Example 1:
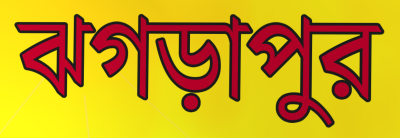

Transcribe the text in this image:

ঝগড়াপুর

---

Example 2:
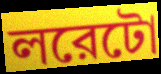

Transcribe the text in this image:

লরেটো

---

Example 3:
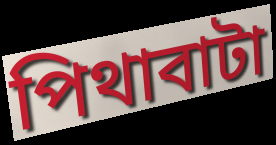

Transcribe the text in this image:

পিথাবাটা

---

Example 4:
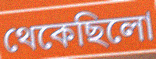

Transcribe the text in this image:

থেকেছিলো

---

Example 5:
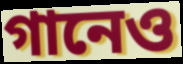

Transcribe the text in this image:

গানেও